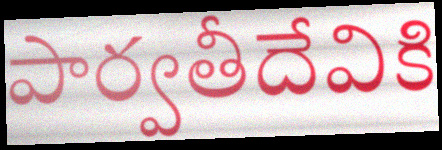
పార్వతీదేవికి